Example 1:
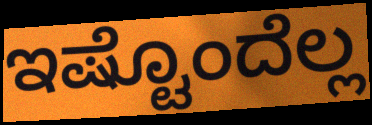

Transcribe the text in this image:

ಇಷ್ಟೊಂದೆಲ್ಲ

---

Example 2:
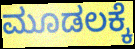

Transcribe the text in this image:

ಮೂಡಲಕ್ಕೆ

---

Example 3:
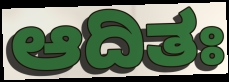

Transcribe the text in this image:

ಆದಿತಃ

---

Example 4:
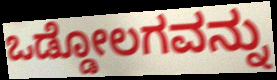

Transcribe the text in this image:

ಒಡ್ಡೋಲಗವನ್ನು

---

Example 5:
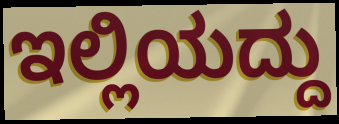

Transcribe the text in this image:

ಇಲ್ಲಿಯದ್ದು